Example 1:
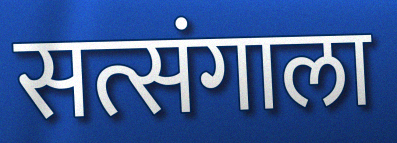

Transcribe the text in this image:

सत्संगाला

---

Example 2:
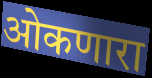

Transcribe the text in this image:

ओकणारा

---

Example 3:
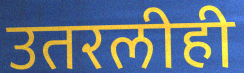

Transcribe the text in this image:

उतरलीही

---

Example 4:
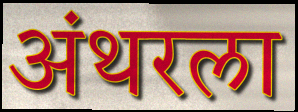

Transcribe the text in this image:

अंथरला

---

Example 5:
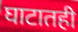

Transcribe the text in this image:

घाटातही